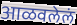
आळवलेलं